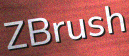
ZBrush